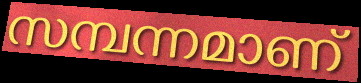
സമ്പന്നമാണ്